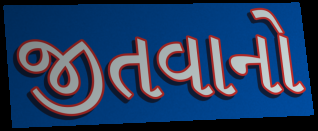
જીતવાનો